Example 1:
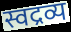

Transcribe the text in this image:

स्वद्रव्य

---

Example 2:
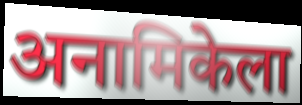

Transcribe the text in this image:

अनामिकेला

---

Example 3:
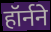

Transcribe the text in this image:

हॉर्नने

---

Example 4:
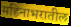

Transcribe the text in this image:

महिनाभरातील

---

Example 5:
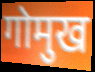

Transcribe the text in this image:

गोमुख